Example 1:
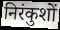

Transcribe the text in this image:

निरंकुशों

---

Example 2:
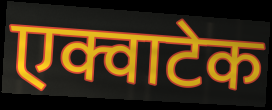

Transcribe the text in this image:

एक्वाटेक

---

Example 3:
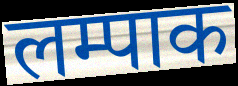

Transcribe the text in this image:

लम्पाक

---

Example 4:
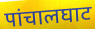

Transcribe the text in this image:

पांचालघाट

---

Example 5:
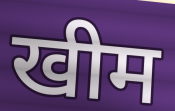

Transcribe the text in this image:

खीम